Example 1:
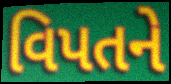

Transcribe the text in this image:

વિપતને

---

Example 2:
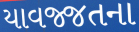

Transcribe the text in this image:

યાવજ્જતના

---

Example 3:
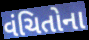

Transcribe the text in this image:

વંચિતોના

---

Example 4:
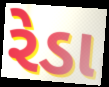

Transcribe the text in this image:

રેડા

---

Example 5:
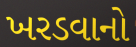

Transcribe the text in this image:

ખરડવાનો